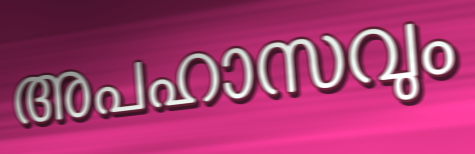
അപഹാസവും